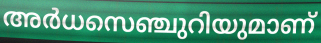
അർധസെഞ്ചുറിയുമാണ്